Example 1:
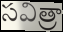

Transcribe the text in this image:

సవిత్రా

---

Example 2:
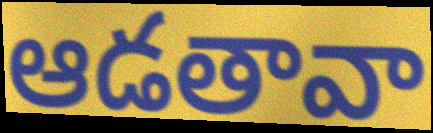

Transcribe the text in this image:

ఆడతావా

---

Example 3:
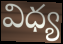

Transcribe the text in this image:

విధ్య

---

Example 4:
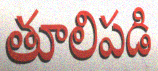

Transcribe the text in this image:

తూలిపడి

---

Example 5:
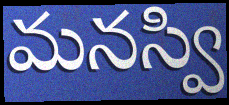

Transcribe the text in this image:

మనస్వి